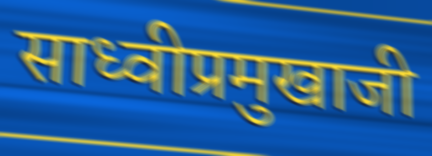
साध्वीप्रमुखाजी